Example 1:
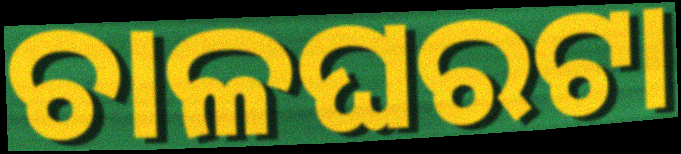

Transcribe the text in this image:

ଚାଳଘରଟା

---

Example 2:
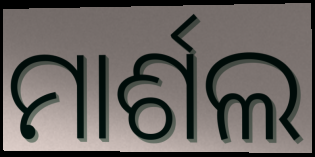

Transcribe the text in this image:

ମାର୍ଶଲ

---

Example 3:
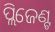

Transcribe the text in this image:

ପ୍ଲିଜେଣ୍ଟ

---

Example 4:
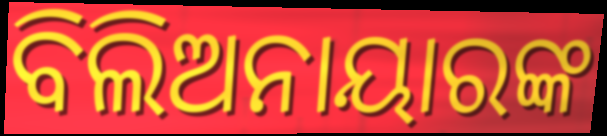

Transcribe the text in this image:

ବିଲିଅନାୟାରଙ୍କ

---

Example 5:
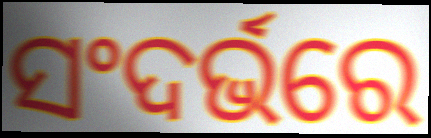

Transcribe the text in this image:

ସଂଦର୍ଭରେ